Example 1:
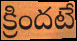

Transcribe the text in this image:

క్రిందటే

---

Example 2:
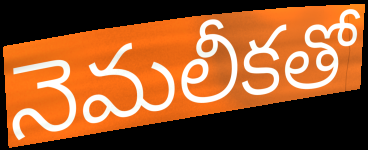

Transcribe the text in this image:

నెమలీకతో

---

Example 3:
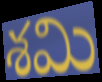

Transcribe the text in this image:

శమి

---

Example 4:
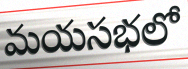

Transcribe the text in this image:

మయసభలో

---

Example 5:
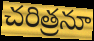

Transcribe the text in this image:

చరిత్రనూ